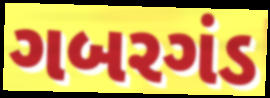
ગબરગંડ